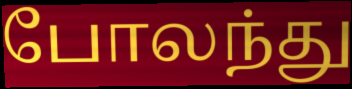
போலந்து